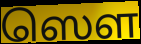
ஸௌ